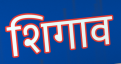
शिगाव